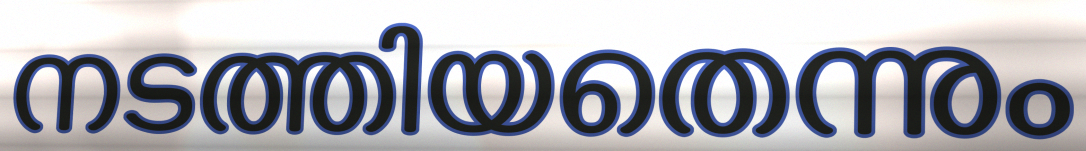
നടത്തിയതെന്നും